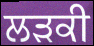
ਲੜਕੀ